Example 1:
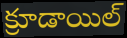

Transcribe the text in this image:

క్రూడాయిల్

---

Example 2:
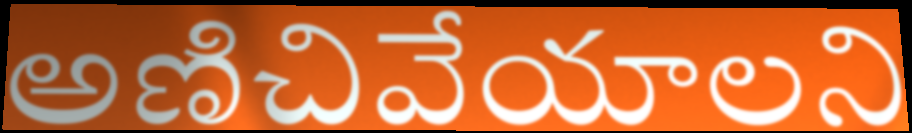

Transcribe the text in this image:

అణిచివేయాలని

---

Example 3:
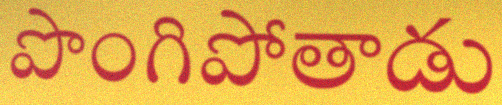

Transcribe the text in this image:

పొంగిపోతాడు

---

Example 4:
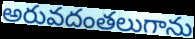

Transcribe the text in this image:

అరువదంతలుగాను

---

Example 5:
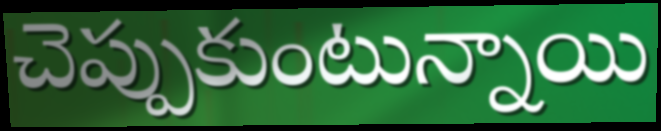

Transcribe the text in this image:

చెప్పుకుంటున్నాయి